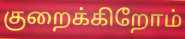
குறைக்கிறோம்